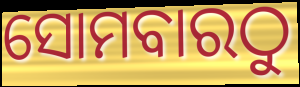
ସୋମବାରଠୁ